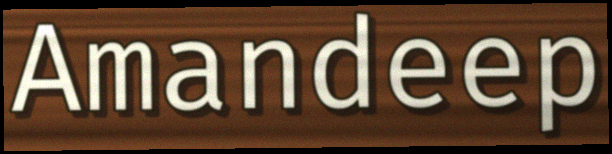
Amandeep